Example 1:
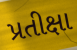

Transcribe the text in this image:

પ્રતીક્ષા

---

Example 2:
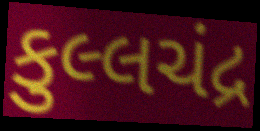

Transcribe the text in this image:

કુલ્લચંદ્ર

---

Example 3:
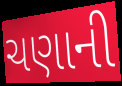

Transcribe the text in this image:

ચણાની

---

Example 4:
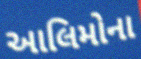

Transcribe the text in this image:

આલિમોના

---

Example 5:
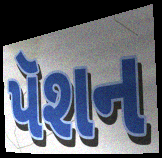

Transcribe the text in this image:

પૅશન